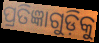
ପ୍ରତିଜ୍ଞାଗୁଡ଼ିକୁ